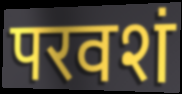
परवशं